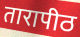
तारापीठ